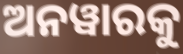
ଅନୱାରକୁ